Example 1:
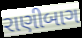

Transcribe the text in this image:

રાણીબાગ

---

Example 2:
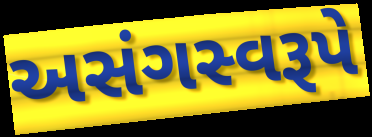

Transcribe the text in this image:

અસંગસ્વરૂપે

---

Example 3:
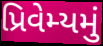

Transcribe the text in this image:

પ્રિવેમ્યમું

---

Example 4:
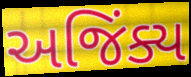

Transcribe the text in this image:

અજિંક્ય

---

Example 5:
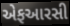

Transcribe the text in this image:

એફઆરસી